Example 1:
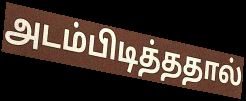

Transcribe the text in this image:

அடம்பிடித்ததால்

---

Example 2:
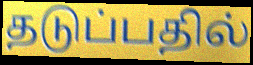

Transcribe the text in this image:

தடுப்பதில்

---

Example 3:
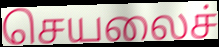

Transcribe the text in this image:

செயலைச்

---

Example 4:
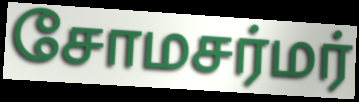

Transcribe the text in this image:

சோமசர்மர்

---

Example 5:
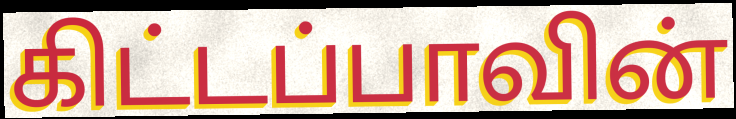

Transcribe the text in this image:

கிட்டப்பாவின்